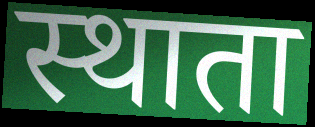
स्थाता